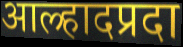
आल्हादप्रदा